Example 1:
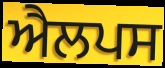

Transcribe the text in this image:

ਐਲਪਸ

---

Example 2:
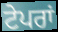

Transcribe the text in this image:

ਟੇਪਰਾਂ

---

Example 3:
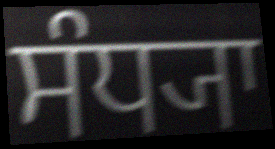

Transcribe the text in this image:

ਸੰਧ੍ਯਾ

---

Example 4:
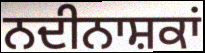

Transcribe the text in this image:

ਨਦੀਨਾਸ਼ਕਾਂ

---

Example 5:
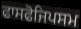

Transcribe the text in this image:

ਫਾਸਫੋਜਿਪਸਮ